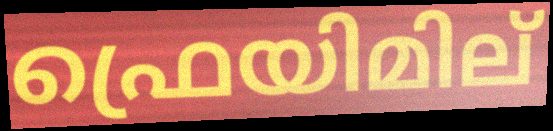
ഫ്രെയിമില്